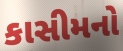
કાસીમનો